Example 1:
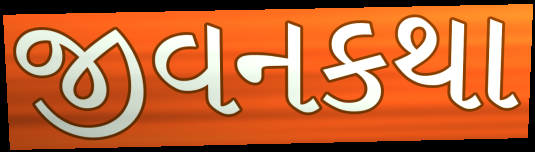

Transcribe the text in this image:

જીવનકથા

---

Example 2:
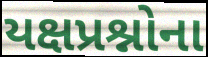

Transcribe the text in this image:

યક્ષપ્રશ્નોના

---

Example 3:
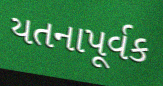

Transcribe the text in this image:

યતનાપૂર્વક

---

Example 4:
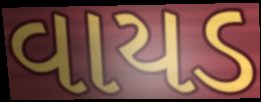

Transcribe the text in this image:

વાયડ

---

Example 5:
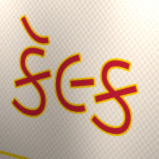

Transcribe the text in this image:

કૅલ્ક